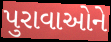
પુરાવાઓને